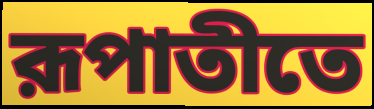
রূপাতীতে